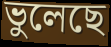
ভুলেছে